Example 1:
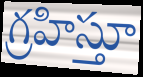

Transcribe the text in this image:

గ్రహిస్తూ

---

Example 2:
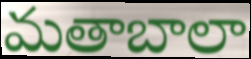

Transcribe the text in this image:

మతాబాలా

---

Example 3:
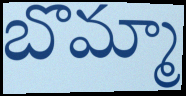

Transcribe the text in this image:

బొమ్మా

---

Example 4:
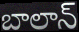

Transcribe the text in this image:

బాలాన్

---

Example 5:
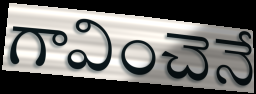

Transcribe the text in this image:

గావించెనే